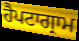
ਹੈਪਟਾਗ੍ਰਾਮ